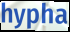
hypha